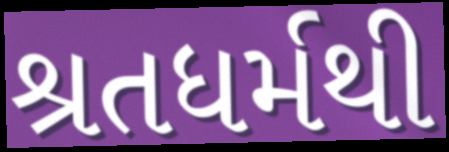
શ્રતધર્મથી